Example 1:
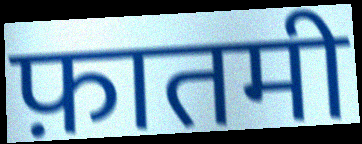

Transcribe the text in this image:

फ़ातमी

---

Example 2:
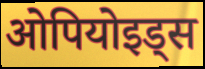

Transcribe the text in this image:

ओपियोइड्स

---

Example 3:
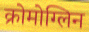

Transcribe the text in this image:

क्रोमोग्लिन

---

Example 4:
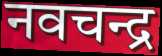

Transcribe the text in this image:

नवचन्द्र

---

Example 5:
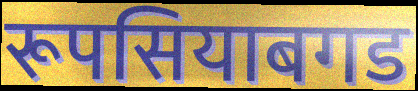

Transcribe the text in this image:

रूपसियाबगड